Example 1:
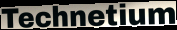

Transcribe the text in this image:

Technetium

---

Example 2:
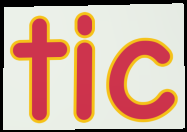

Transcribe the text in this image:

tic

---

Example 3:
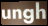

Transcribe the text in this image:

ungh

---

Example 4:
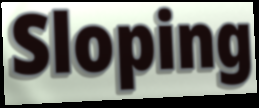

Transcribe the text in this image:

Sloping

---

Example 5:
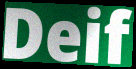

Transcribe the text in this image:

Deif